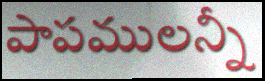
పాపములన్నీ